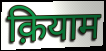
क़ियाम